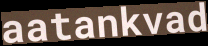
aatankvad